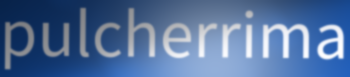
pulcherrima